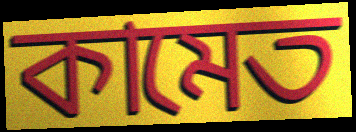
কামেত